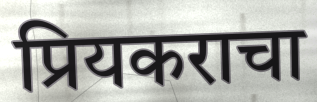
प्रियकराचा